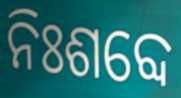
ନିଃଶବ୍ଦେ